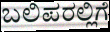
ಬಲಿಪರಲ್ಲಿಗೆ